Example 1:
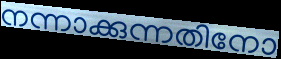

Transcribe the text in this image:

നന്നാക്കുന്നതിനോ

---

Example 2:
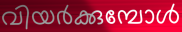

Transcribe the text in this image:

വിയർക്കുമ്പോൾ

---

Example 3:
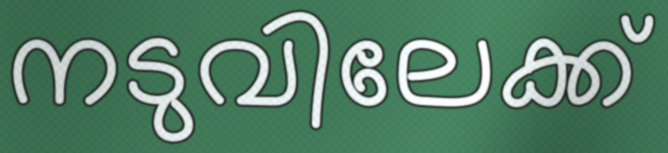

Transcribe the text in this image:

നടുവിലേക്ക്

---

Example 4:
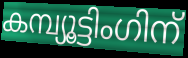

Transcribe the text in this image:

കമ്പ്യൂട്ടിംഗിന്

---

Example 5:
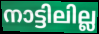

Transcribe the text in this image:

നാട്ടിലില്ല